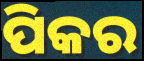
ପିକର